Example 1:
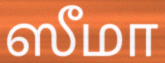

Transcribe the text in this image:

ஸீமா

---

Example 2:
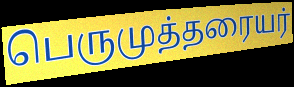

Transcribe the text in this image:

பெருமுத்தரையர்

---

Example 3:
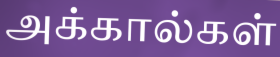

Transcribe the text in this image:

அக்கால்கள்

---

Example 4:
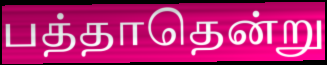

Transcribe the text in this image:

பத்தாதென்று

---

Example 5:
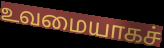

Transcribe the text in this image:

உவமையாகச்